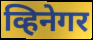
व्हिनेगर